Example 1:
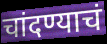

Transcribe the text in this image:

चांदण्याचं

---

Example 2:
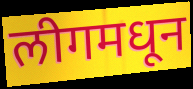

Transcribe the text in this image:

लीगमधून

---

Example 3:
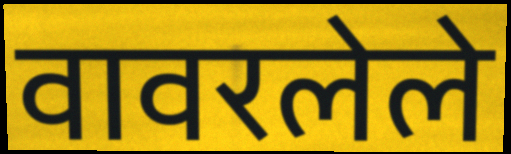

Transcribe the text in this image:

वावरलेले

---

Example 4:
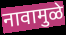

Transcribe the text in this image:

नावामुळे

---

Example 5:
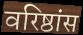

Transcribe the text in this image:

वरिष्ठांस